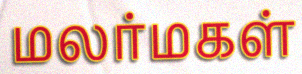
மலர்மகள்